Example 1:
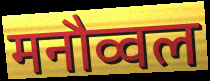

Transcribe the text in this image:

मनौव्वल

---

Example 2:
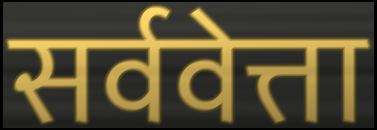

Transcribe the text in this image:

सर्ववेत्ता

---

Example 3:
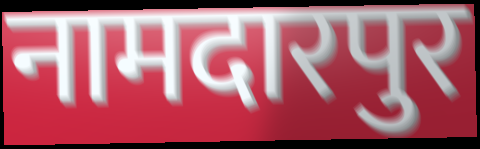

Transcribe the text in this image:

नामदारपुर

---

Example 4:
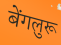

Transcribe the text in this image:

बेंगलुरू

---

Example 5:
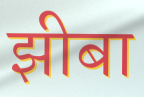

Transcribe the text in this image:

झीबा